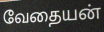
வேதையன்